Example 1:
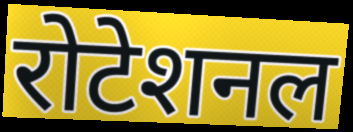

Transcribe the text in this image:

रोटेशनल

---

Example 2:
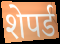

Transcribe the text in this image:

शेपर्ड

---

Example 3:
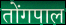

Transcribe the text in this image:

तोंगपाल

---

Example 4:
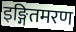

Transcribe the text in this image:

इङ्गितमरण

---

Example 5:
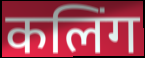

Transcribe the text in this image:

कलिंग